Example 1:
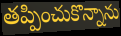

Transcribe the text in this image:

తప్పించుకొన్నాను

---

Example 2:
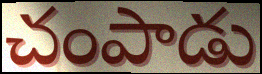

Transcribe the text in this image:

చంపాడు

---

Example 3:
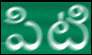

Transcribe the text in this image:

పిటి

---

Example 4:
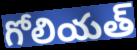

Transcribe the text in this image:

గోలియత్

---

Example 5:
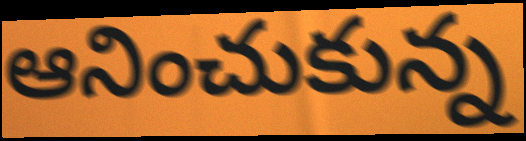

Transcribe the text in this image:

ఆనించుకున్న